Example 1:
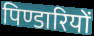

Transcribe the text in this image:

पिण्डारियों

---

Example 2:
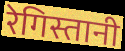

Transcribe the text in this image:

रेगिस्तानी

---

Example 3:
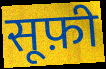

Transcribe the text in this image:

सूफ़ी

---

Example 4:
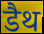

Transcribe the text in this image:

डैथ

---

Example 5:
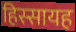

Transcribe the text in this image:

हिस्सायह